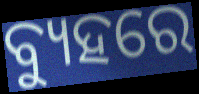
ବ୍ୟୁହରେ